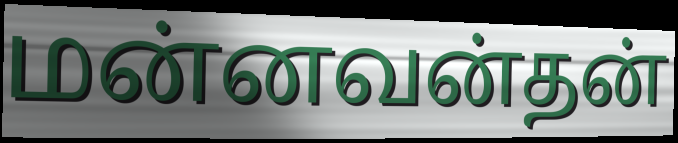
மன்னவன்தன்